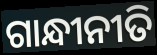
ଗାନ୍ଧୀନୀତି